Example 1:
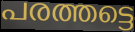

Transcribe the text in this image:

പരത്തട്ടെ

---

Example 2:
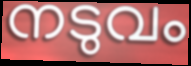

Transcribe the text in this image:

നടുവം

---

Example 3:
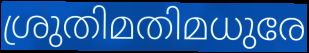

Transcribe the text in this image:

ശ്രുതിമതിമധുരേ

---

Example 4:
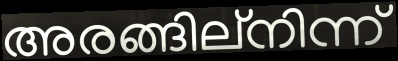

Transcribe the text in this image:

അരങ്ങില്നിന്ന്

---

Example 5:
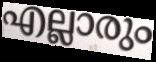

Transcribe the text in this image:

എല്ലാരും